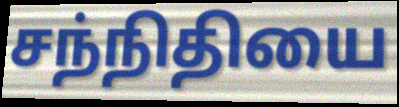
சந்நிதியை